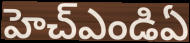
హెచ్ఎండిఏ